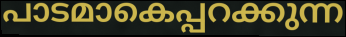
പാടമാകെപ്പറക്കുന്ന